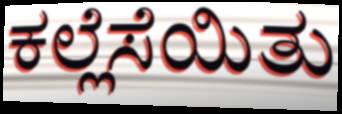
ಕಲ್ಲೆಸೆಯಿತು